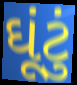
ઘૂંટું